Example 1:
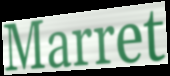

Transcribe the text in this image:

Marret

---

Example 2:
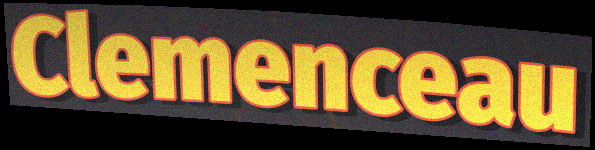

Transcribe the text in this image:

Clemenceau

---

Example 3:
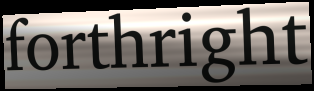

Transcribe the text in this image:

forthright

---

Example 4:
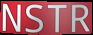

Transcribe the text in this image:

NSTR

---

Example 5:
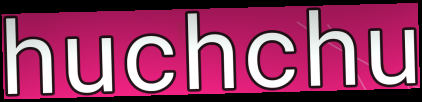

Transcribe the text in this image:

huchchu